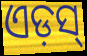
ଏଡ଼ସ୍